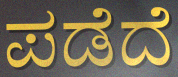
ಪಡೆದೆ